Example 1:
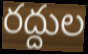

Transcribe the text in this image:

రద్దుల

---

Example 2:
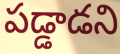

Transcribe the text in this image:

పడ్డాడని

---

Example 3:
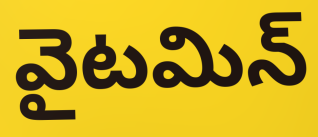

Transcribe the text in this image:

వైటమిన్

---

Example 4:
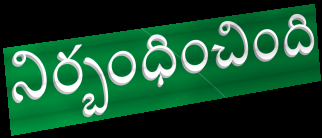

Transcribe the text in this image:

నిర్బంధించింది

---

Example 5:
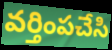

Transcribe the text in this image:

వర్తింపచేసి